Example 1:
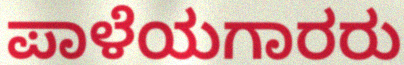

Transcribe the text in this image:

ಪಾಳೆಯಗಾರರು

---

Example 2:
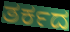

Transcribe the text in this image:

ತರ್ಕದ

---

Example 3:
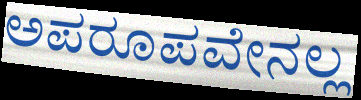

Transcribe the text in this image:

ಅಪರೂಪವೇನಲ್ಲ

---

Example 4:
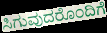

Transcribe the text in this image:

ಸಿಗುವುದರೊಂದಿಗೆ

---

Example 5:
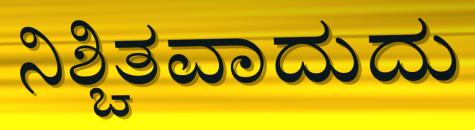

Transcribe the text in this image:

ನಿಶ್ಚಿತವಾದುದು